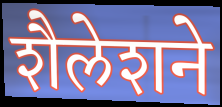
शैलेशने